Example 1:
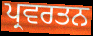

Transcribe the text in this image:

ਪ੍ਰਵਰਤਨ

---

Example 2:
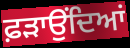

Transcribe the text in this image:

ਫ਼ੜਾਉਂਦਿਆਂ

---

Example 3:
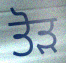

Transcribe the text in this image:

ਤੋਡ਼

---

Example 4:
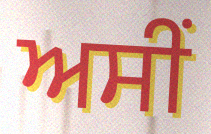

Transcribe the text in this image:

ਅਸੀੰ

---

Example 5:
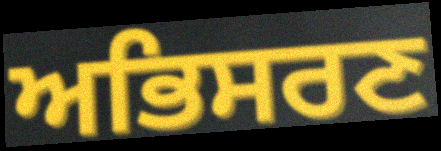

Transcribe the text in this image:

ਅਭਿਸਰਣ